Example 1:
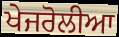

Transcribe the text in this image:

ਖੇਜਰੋਲੀਆ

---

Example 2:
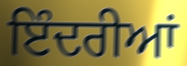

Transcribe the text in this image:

ਇੰਦਰੀਆਂ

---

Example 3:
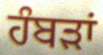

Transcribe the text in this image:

ਹੰਬੜਾਂ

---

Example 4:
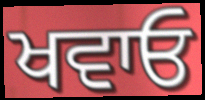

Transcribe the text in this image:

ਖਵਾਓ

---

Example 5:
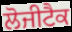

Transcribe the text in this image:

ਲੋਜੀਟੈਕ